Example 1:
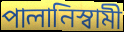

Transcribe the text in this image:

পালানিস্বামী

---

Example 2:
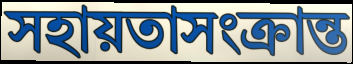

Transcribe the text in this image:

সহায়তাসংক্রান্ত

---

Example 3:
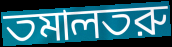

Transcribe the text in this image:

তমালতরু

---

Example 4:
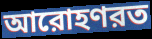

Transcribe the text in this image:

আরোহণরত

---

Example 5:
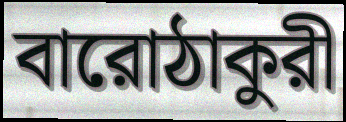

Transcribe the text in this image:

বারোঠাকুরী